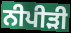
ਨੀਪੀੜੀ